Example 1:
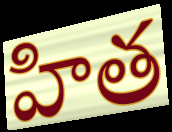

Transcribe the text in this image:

హిత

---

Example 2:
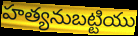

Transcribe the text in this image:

హత్యనుబట్టియు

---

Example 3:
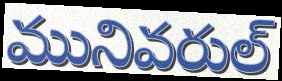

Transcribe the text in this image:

మునివరుల్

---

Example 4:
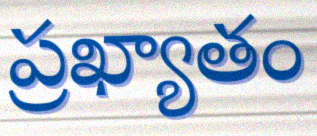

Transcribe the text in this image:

ప్రఖ్యాతం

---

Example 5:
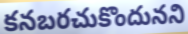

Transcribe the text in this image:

కనబరచుకొందునని